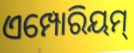
ଏମ୍ପୋରିୟମ୍